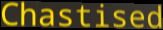
Chastised